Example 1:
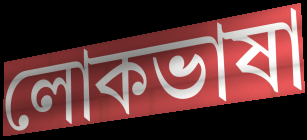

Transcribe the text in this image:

লোকভাষা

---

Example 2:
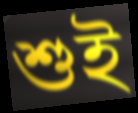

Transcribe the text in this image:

শুই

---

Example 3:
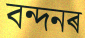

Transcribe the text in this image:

বন্দনৰ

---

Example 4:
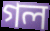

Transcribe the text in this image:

গল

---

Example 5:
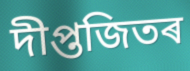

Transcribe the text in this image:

দীপ্তজিতৰ